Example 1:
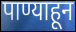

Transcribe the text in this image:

पाण्याहून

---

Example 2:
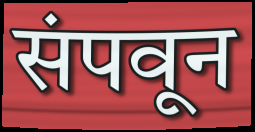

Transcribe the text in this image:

संपवून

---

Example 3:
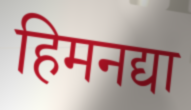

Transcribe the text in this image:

हिमनद्या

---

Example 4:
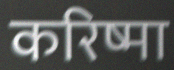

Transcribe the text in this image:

करिष्मा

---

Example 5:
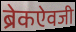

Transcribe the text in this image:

ब्रेकऐवजी